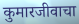
कुमारजीवाचा